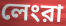
লেংরা